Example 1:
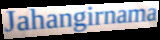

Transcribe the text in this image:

Jahangirnama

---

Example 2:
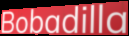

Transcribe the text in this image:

Bobadilla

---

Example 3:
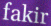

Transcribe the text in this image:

fakir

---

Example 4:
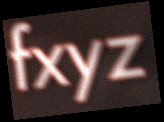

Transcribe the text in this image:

fxyz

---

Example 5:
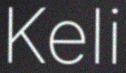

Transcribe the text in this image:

Keli